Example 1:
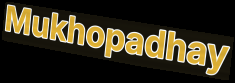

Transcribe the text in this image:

Mukhopadhay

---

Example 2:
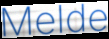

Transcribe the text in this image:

Melde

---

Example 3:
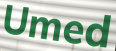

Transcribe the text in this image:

Umed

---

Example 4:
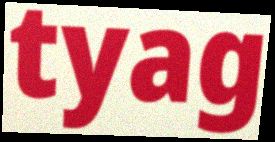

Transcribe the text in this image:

tyag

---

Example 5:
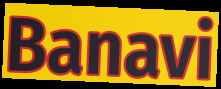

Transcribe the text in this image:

Banavi